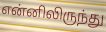
என்னிலிருந்து